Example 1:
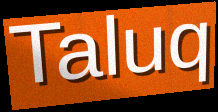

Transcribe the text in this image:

Taluq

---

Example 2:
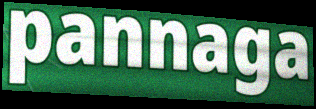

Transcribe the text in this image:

pannaga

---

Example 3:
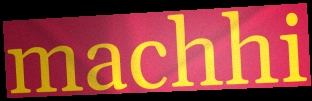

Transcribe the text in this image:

machhi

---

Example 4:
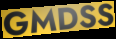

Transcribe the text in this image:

GMDSS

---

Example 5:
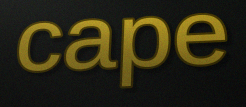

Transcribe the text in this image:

cape